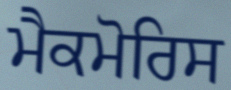
ਮੈਕਮੋਰਿਸ